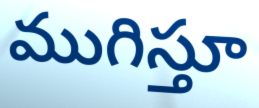
ముగిస్తూ